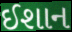
ઈશાન